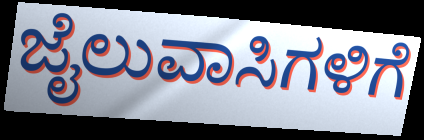
ಜೈಲುವಾಸಿಗಳಿಗೆ